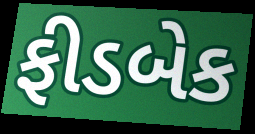
ફીડબેક